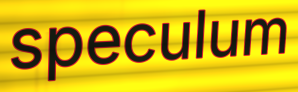
speculum